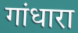
गांधारा